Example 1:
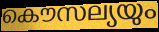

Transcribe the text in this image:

കൌസല്യയും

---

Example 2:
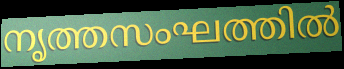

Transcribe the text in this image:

നൃത്തസംഘത്തിൽ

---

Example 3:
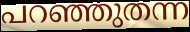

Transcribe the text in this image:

പറഞ്ഞുതന്ന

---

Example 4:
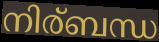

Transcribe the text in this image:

നിര്ബന്ധ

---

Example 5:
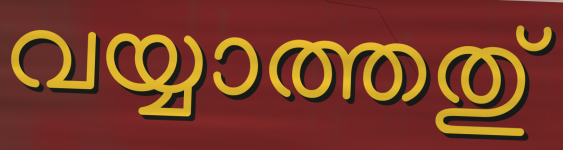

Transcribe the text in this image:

വയ്യാത്തതു്